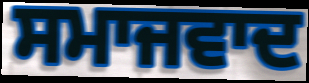
ਸਮਾਜਵਾਦ